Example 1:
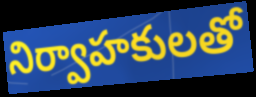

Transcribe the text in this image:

నిర్వాహకులతో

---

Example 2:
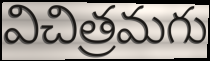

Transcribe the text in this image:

విచిత్రమగు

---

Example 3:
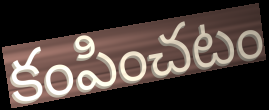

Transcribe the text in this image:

కంపించటం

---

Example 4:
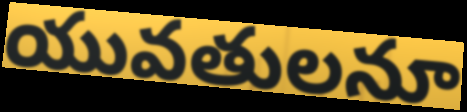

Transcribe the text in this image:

యువతులనూ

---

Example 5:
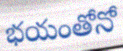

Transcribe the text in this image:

భయంతోనో